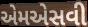
એમએસવી